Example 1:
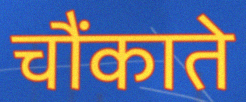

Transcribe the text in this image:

चौंकाते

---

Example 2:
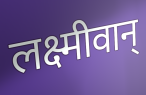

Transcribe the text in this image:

लक्ष्मीवान्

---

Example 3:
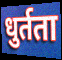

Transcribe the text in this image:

धुर्तता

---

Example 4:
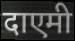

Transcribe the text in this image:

दाएमी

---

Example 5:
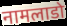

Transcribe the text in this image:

नामलाडो